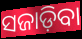
ସଜାଡ଼ିବା